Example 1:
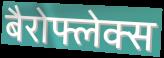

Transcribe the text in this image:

बैरोफ्लेक्स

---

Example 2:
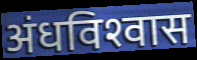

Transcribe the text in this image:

अंधविश्वास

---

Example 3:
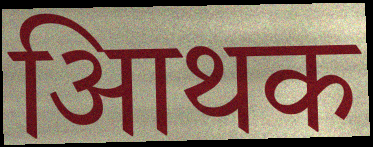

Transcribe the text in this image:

आिथक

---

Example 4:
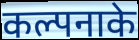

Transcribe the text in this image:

कल्पनाके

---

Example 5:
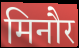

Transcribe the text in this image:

मिनौर